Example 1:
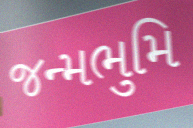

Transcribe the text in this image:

જન્મભુમિ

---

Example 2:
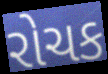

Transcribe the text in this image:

રોચક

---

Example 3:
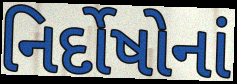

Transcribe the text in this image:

નિર્દોષોનાં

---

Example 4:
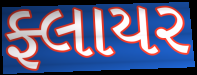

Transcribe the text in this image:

ફ્લાયર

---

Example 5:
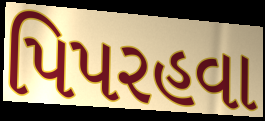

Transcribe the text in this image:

પિપરહવા